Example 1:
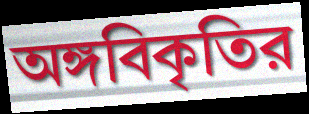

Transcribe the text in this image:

অঙ্গবিকৃতির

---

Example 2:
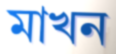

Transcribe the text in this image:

মাখন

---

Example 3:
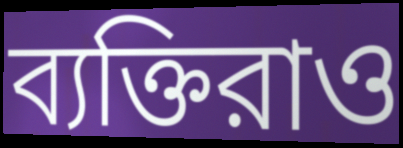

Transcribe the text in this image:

ব্যক্তিরাও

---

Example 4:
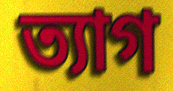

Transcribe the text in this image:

ত্যাগ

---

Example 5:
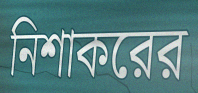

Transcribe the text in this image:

নিশাকরের